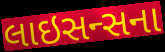
લાઇસન્સના